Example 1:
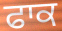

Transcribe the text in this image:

ਫਾਕ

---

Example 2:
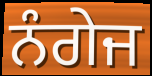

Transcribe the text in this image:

ਨੰਗੇਜ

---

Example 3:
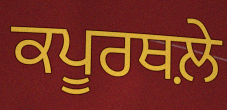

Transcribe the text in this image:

ਕਪੂਰਥਲ਼ੇ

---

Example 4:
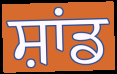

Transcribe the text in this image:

ਸ਼ਾਂਡ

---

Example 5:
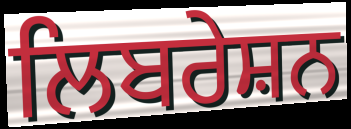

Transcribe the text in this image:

ਲਿਬਰੇਸ਼ਨ